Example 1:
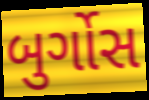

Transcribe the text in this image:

બુર્ગોસ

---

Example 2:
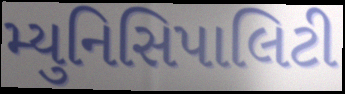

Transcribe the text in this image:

મ્યુનિસિપાલિટી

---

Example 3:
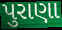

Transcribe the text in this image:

પુરાણા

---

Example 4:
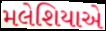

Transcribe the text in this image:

મલેશિયાએ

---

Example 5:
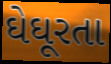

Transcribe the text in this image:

ઘેઘૂરતા